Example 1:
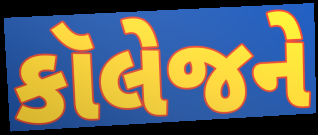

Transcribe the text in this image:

કૉલેજને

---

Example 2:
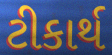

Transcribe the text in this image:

ટીકાર્થ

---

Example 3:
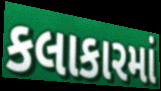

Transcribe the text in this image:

કલાકારમાં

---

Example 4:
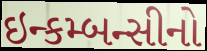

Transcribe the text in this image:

ઇન્કમ્બન્સીનો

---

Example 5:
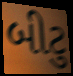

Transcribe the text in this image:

બીટુ